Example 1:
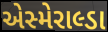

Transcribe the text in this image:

એસ્મેરાલ્ડા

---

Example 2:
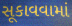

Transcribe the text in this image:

સૂકાવવામાં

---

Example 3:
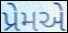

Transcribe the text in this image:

પ્રેમએ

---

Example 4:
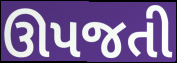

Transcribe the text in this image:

ઊપજતી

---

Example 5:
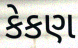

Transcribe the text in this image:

કેકણ